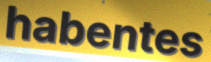
habentes